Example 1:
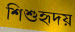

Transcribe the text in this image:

শিশুহৃদয়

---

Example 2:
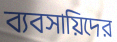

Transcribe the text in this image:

ব্যবসায়িদের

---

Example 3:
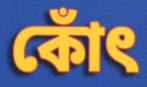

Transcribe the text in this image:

কোঁৎ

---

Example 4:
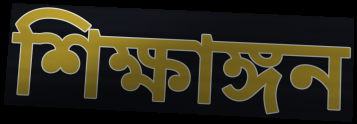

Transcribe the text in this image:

শিক্ষাঙ্গন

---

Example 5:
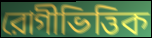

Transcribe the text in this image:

রোগীভিত্তিক